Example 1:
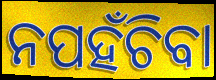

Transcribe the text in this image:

ନପହଁଚିବା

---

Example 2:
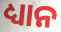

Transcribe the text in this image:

ଧ୍ୟାନ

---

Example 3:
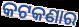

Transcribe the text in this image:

କଟକଣାର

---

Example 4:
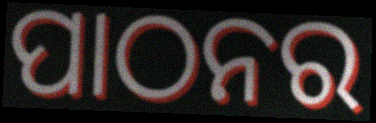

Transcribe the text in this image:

ପାଠନର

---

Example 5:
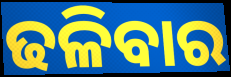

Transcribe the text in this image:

ଢଳିବାର